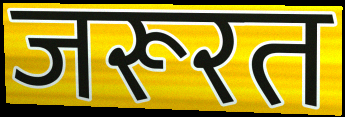
जरूरत